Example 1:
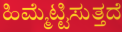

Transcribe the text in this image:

ಹಿಮ್ಮೆಟ್ಟಿಸುತ್ತದೆ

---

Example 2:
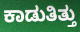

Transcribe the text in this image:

ಕಾಡುತಿತ್ತು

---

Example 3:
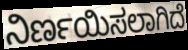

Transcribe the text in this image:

ನಿರ್ಣಯಿಸಲಾಗಿದೆ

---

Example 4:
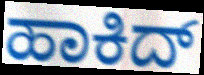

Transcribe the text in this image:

ಹಾಕಿದ್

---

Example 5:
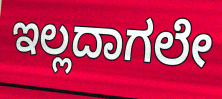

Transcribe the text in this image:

ಇಲ್ಲದಾಗಲೇ